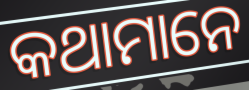
କଥାମାନେ